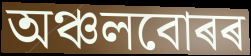
অঞ্চলবোৰৰ